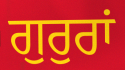
ਗੁਰੁਰਾਂ